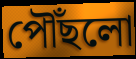
পৌঁছলো